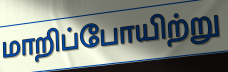
மாறிப்போயிற்று